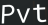
Pvt